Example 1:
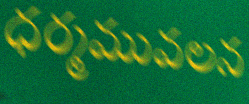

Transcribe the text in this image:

ధర్మమువలన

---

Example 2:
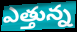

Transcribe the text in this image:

ఎత్తున్న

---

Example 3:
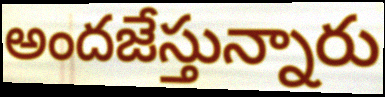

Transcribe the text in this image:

అందజేస్తున్నారు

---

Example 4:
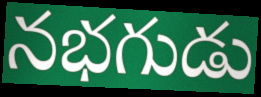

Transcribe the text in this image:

నభగుడు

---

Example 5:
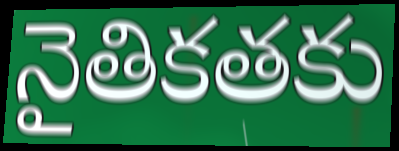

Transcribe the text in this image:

నైతికతకు